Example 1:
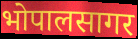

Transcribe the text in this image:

भोपालसागर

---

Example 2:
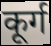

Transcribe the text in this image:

कूर्ग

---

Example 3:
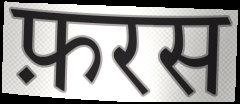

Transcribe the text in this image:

फ़रस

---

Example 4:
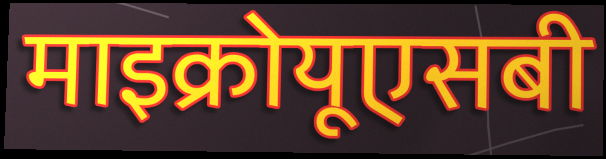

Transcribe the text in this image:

माइक्रोयूएसबी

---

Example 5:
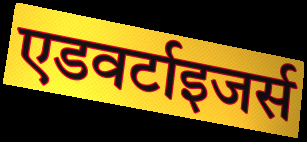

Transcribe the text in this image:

एडवर्टाइजर्स